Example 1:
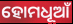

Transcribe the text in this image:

ହୋମଧୂଆଁ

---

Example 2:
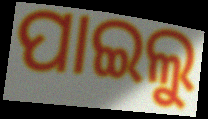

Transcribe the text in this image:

ପାଇଲୁ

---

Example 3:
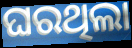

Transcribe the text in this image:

ଘରଥିଲା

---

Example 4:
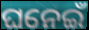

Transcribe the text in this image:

ଘନେଇଁ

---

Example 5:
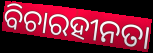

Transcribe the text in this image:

ବିଚାରହୀନତା